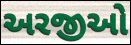
અરજીઓ